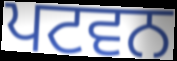
ਪਟਵਨ